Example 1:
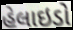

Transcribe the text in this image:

હેલાઇડો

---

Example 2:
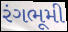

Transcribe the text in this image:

રંગભૂમી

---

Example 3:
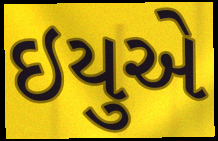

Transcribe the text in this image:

ઇયુએ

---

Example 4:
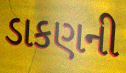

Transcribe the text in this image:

ડાકણની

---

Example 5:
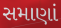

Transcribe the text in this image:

સમાણાં